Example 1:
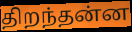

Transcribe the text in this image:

திறந்தன்ன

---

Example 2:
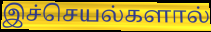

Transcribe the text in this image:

இச்செயல்களால்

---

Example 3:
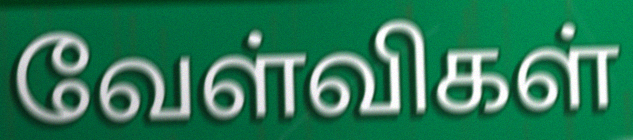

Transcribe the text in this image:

வேள்விகள்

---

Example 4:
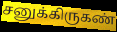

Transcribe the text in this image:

சனுக்கிருகண்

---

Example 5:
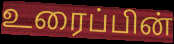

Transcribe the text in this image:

உரைப்பின்